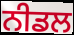
ਨੀਡਲ